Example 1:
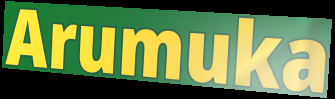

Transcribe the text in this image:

Arumuka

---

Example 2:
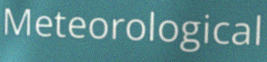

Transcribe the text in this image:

Meteorological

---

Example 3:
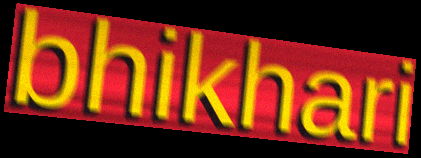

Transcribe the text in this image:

bhikhari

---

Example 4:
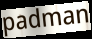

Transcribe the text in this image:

padman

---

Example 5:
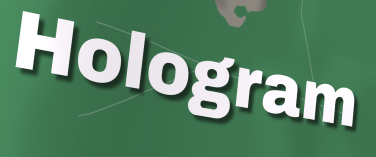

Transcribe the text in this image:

Hologram